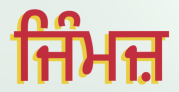
ਜਿੰਮਜ਼